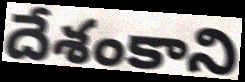
దేశంకాని